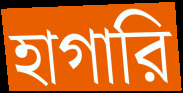
হাগারি